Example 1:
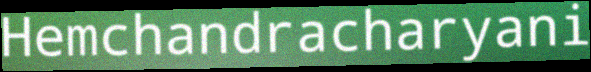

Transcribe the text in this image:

Hemchandracharyani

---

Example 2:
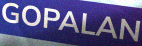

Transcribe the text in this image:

GOPALAN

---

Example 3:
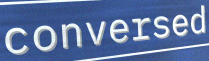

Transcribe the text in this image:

conversed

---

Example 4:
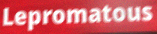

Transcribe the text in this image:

Lepromatous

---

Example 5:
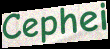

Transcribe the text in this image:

Cephei